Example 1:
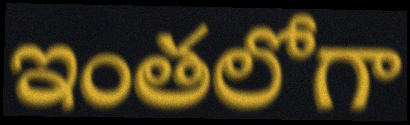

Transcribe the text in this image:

ఇంతలోగా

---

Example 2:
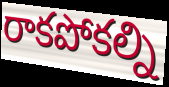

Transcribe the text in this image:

రాకపోకల్ని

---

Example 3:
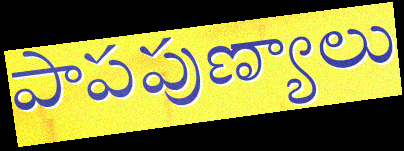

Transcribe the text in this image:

పాపపుణ్యాలు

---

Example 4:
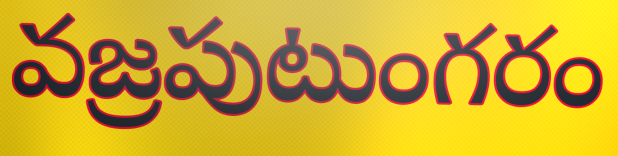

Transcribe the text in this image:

వజ్రపుటుంగరం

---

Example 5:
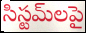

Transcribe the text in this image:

సిస్టమ్‌లపై